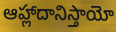
ఆహ్లాదానిస్తాయో